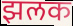
झलक